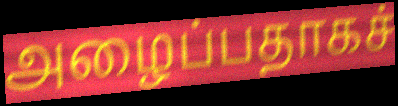
அழைப்பதாகச்